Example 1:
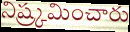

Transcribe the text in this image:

నిష్ర్కమించారు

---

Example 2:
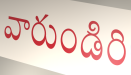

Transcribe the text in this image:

వారుండిరి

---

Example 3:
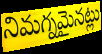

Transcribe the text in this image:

నిమగ్నమైనట్లు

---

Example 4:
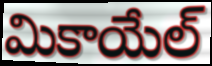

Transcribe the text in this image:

మికాయేల్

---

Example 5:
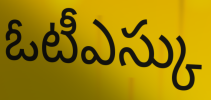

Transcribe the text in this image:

ఓటీఎస్కు